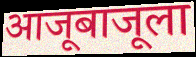
आजूबाजूला